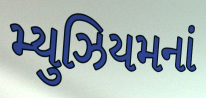
મ્યુઝિયમનાં